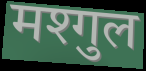
मश्गुल